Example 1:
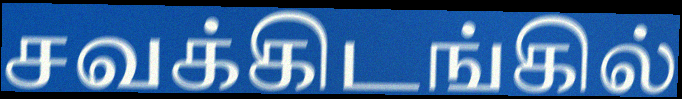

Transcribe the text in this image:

சவக்கிடங்கில்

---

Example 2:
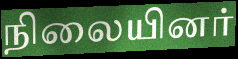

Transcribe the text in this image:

நிலையினர்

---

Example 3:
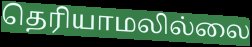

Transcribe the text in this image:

தெரியாமலில்லை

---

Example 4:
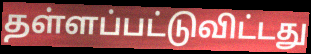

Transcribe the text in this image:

தள்ளப்பட்டுவிட்டது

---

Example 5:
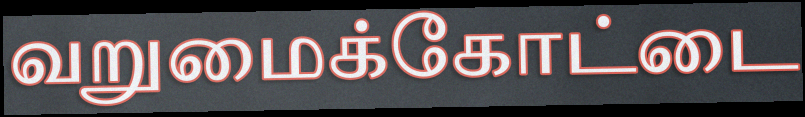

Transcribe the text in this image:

வறுமைக்கோட்டை